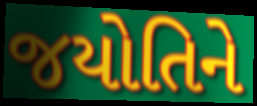
જયોતિને